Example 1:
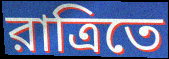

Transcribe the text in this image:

রাত্রিতে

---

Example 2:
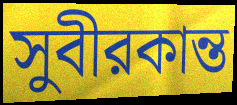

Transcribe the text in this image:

সুবীরকান্ত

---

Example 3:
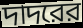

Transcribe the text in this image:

দাদরের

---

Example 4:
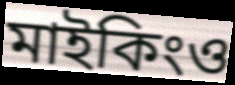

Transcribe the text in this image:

মাইকিংও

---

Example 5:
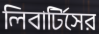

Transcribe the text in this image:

লিবার্টিসের